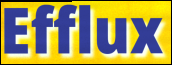
Efflux